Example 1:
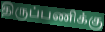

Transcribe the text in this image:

திருப்பணிக்கு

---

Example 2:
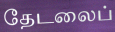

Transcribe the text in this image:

தேடலைப்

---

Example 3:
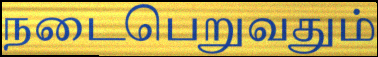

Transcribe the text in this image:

நடைபெறுவதும்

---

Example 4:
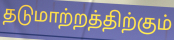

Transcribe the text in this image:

தடுமாற்றத்திற்கும்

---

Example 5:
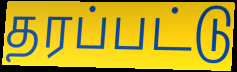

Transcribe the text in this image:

தரப்பட்டு